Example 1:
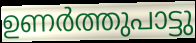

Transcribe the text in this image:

ഉണർത്തുപാട്ടു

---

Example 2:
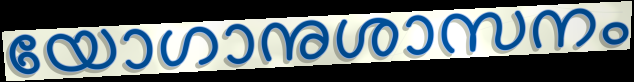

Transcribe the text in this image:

യോഗാനുശാസനം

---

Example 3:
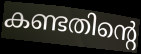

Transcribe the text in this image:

കണ്ടതിന്റെ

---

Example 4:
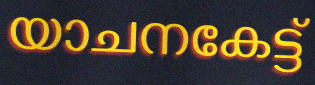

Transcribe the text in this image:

യാചനകേട്ട്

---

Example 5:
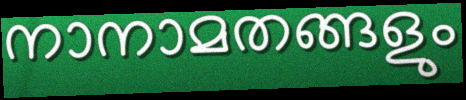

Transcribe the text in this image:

നാനാമതങ്ങളും